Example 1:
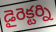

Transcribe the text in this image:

డైరెక్టర్ని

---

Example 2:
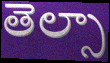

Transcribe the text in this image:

తెల్సా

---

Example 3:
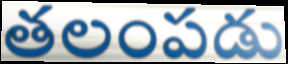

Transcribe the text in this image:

తలంపడు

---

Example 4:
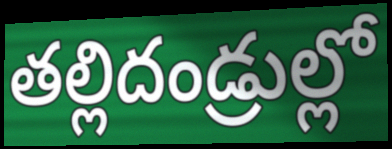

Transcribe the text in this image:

తల్లిదండ్రుల్లో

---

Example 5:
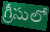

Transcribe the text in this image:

గ్రీసులో